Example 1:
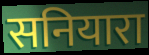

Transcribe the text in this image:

सनियारा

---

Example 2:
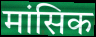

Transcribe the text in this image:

मांसिक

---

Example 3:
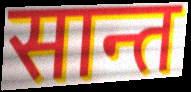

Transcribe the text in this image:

सान्त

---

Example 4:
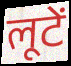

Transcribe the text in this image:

लूटें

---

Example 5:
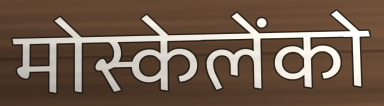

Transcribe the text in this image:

मोस्केलेंको